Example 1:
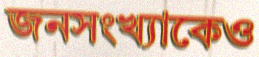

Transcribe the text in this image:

জনসংখ্যাকেও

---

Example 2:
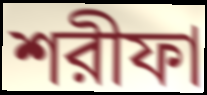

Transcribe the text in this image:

শরীফা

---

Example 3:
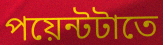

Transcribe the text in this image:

পয়েন্টটাতে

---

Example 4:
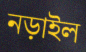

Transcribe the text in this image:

নড়াইল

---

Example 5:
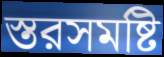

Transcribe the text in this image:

স্তরসমষ্টি